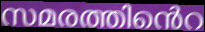
സമരത്തിൻെറ